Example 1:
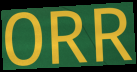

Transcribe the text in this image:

ORR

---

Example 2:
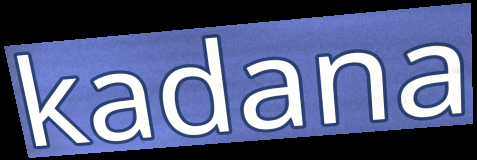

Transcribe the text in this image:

kadana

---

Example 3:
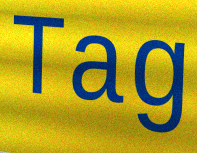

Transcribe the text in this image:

Tag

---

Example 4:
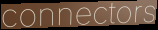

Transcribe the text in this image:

connectors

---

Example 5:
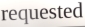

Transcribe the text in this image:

requested